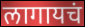
लागायचं